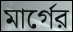
মার্গের